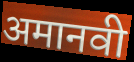
अमानवी